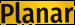
Planar